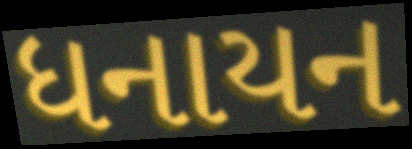
ધનાયન